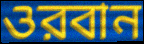
ওরবান